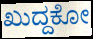
ಖುದ್ದಕೋ